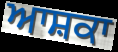
ਆਸ਼ਕਾ